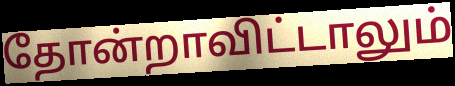
தோன்றாவிட்டாலும்